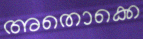
അതൊക്കെ